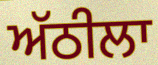
ਅੱਠੀਲਾ